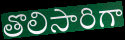
తొలిసారిగా